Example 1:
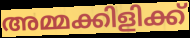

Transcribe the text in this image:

അമ്മക്കിളിക്ക്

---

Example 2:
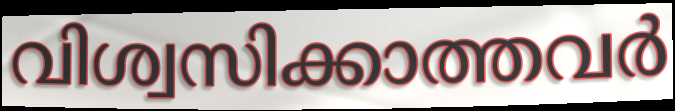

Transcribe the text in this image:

വിശ്വസിക്കാത്തവർ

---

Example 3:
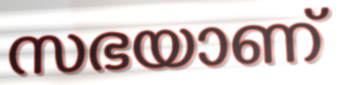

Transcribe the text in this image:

സഭയാണ്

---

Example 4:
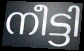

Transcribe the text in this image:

നീട്ടി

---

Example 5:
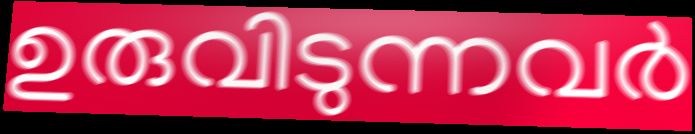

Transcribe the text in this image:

ഉരുവിടുന്നവർ